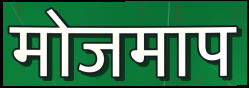
मोजमाप